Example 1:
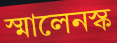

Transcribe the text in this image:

স্মালেনস্ক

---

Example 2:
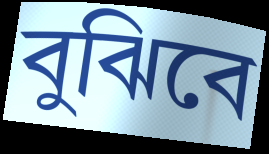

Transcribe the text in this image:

বুঝিবে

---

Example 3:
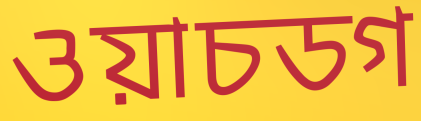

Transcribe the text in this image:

ওয়াচডগ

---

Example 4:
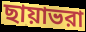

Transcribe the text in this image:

ছায়াভরা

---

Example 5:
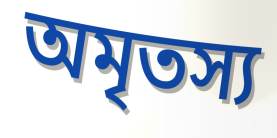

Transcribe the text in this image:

অমৃতস্য